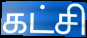
கட்சி